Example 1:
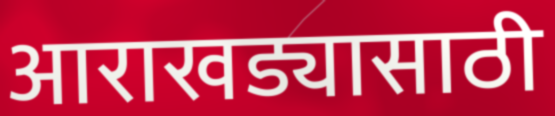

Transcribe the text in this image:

आराखड्यासाठी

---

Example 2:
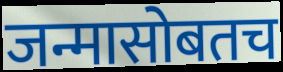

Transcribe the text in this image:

जन्मासोबतच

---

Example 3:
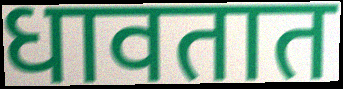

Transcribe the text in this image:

धावतात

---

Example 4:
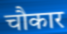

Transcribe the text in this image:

चौकार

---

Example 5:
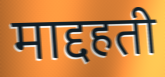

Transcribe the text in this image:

माद्दहती